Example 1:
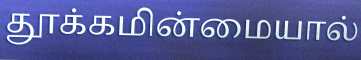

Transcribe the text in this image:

தூக்கமின்மையால்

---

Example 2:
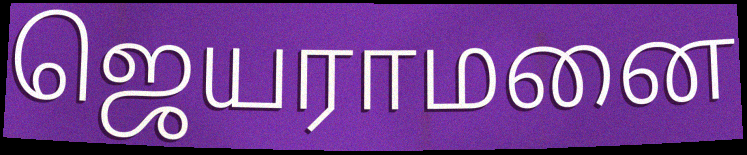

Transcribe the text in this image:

ஜெயராமனை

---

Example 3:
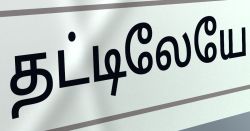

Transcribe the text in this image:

தட்டிலேயே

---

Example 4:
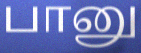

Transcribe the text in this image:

பானு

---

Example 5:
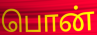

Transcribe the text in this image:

பொன்